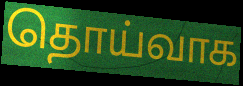
தொய்வாக